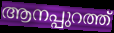
ആനപ്പുറത്ത്